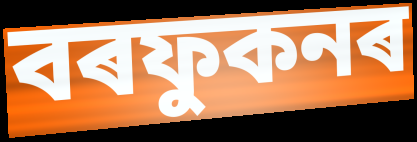
বৰফুকনৰ